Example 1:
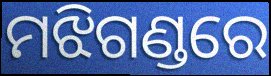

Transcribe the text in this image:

ମଝିଗଣ୍ଡରେ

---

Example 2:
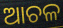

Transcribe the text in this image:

ଆଚଳ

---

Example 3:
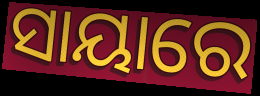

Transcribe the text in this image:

ସାୟାରେ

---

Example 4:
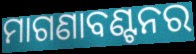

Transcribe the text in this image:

ମାଗଣାବଣ୍ଟନର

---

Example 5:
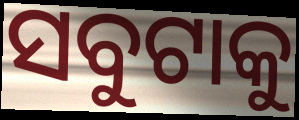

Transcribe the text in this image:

ସବୁଟାକୁ